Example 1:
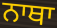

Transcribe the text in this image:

ਨਾਥਾ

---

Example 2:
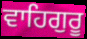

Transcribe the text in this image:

ਵਾਹਿਗੁਰੂ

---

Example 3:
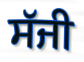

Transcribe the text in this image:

ਸੱਜੀ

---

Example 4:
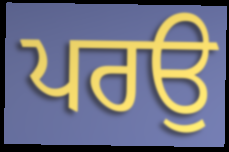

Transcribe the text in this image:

ਪਰਉ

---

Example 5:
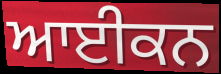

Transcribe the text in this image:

ਆਈਕਨ